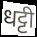
धट्टी